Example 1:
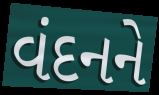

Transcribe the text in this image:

વંદનને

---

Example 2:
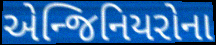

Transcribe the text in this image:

એન્જિનિયરોના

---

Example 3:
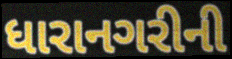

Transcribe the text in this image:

ધારાનગરીની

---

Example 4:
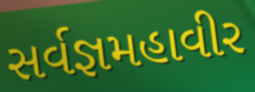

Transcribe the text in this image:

સર્વજ્ઞમહાવીર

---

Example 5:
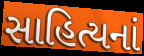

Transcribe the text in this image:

સાહિત્યનાં